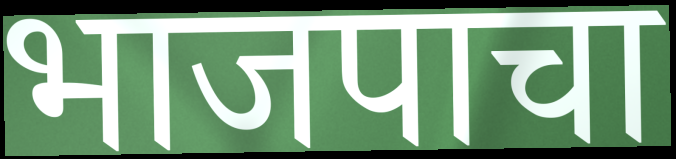
भाजपाचा